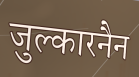
जुल्कारनैन